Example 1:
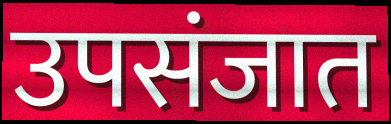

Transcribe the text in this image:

उपसंजात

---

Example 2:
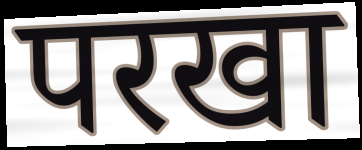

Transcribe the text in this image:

परखा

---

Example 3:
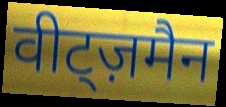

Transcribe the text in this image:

वीट्ज़मैन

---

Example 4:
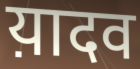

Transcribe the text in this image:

य़ादव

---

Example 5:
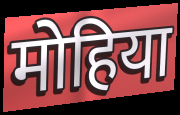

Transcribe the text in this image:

मोहिया